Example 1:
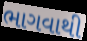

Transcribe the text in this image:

ભાગવાથી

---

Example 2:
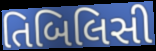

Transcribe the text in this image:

તિબિલિસી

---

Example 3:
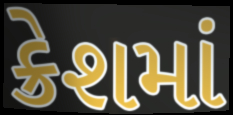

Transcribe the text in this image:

ક્રેશમાં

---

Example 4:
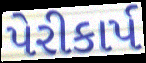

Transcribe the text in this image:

પેરીકાર્પ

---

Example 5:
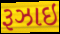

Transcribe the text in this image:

રૂઝાઇ